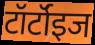
टॉर्टॉइज